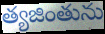
త్యజింతును